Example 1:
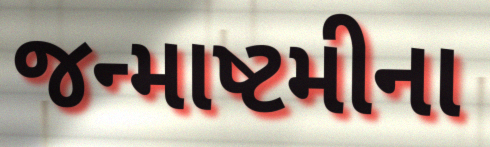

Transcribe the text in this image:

જન્માષ્ટમીના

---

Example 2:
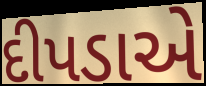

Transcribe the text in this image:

દીપડાએ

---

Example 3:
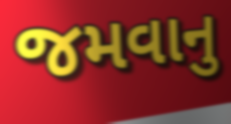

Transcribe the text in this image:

જમવાનુ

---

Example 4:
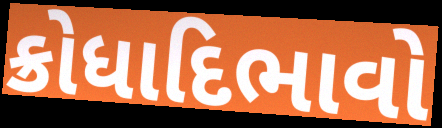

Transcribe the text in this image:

ક્રોધાદિભાવો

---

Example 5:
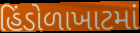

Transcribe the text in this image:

હિંડોળાખાટમાં